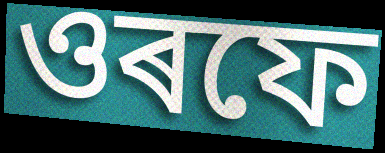
ওৰফে